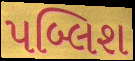
પબ્લિશ